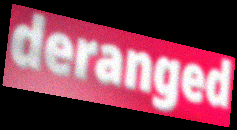
deranged